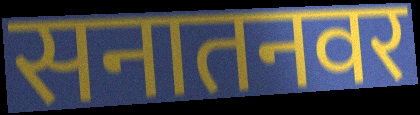
सनातनवर